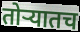
तोऱ्यातच